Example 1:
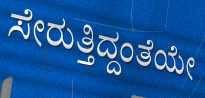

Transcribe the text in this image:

ಸೇರುತ್ತಿದ್ದಂತೆಯೇ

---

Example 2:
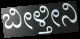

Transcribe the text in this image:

ಬೀಳ್ತೀನಿ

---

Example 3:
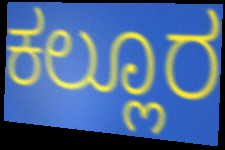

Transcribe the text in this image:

ಕಲ್ಲೂರ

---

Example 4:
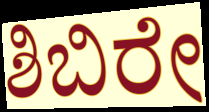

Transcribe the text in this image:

ಶಿಬಿರೇ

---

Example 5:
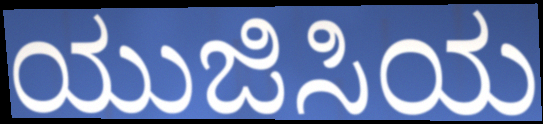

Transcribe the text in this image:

ಯುಜಿಸಿಯ